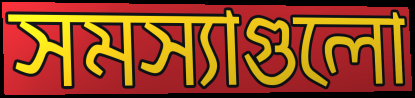
সমস্যাগুলো